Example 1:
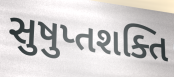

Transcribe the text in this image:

સુષુપ્તશક્તિ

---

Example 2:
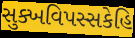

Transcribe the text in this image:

સુક્ખવિપસ્સકેહિ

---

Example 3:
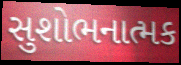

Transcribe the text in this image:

સુશોભનાત્મક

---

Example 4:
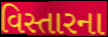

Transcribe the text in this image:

વિસ્તારના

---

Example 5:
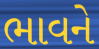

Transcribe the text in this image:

ભાવને